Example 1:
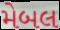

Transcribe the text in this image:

મેબલ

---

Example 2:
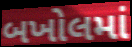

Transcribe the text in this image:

બખોલમાં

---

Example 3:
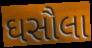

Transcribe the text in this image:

ઘસૌલા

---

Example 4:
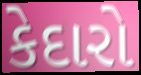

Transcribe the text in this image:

કેદારો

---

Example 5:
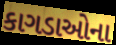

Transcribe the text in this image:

કાગડાઓના